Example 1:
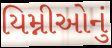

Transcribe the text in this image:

યિમ્નીઓનું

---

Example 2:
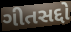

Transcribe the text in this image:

ગીતસદ્દો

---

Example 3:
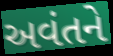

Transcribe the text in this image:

અવંતને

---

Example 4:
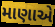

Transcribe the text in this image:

માણાએ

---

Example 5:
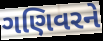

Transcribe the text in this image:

ગણિવરને